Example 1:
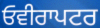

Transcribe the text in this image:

ਓਵੀਰਾਪਟਰ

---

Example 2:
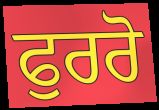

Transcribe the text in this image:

ਫੁਰਰੋ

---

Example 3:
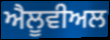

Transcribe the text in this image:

ਐਲੂਵੀਅਲ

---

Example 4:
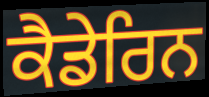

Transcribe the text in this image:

ਕੈਡੇਰਿਨ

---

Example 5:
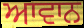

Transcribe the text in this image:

ਆਵਾਨ